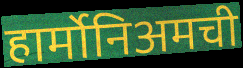
हार्मोनिअमची